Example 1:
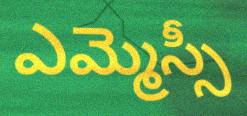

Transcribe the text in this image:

ఎమ్మెస్సీ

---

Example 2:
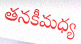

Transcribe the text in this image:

తనకీమధ్య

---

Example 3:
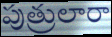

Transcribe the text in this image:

పుత్రులారా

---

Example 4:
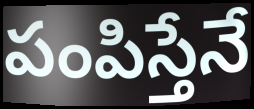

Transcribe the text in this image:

పంపిస్తేనే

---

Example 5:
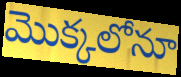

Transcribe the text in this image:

మొక్కలోనూ